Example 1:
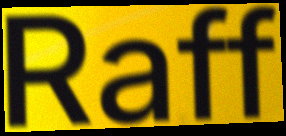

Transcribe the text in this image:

Raff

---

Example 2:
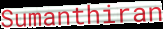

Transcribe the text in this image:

Sumanthiran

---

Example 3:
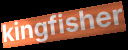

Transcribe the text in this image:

kingfisher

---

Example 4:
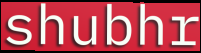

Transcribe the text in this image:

shubhr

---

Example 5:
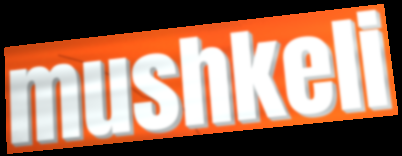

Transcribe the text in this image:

mushkeli